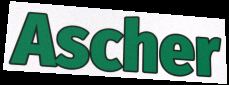
Ascher